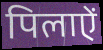
पिलाऐं